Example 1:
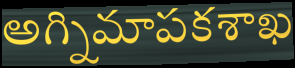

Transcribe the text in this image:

అగ్నిమాపకశాఖ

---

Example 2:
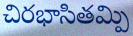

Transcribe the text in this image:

చిరభాసితమ్పి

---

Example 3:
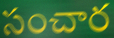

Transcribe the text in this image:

సంచార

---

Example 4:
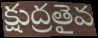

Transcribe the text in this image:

క్షుద్రతైవ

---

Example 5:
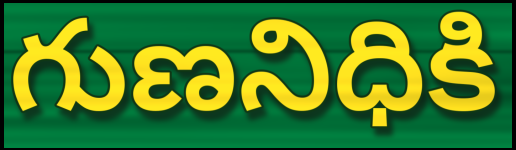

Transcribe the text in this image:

గుణనిధికి